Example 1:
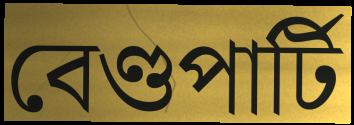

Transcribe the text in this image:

বেণ্ডপাৰ্টি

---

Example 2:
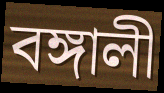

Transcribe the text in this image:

বঙ্গালী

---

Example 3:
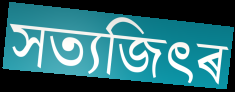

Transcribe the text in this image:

সত্যজিৎৰ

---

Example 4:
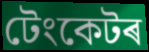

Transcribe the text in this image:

টেংকেটৰ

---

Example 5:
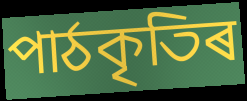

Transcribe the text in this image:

পাঠকৃতিৰ